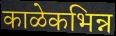
काळेकभिन्न